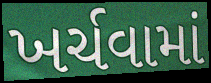
ખર્ચવામાં